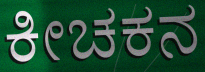
ಕೀಚಕನ